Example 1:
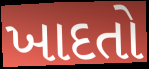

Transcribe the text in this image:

ખાદતો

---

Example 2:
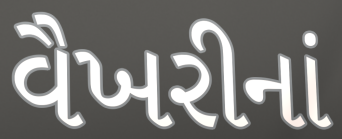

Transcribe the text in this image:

વૈખરીનાં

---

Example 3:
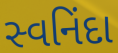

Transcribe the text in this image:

સ્વનિંદા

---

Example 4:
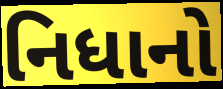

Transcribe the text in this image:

નિધાનો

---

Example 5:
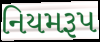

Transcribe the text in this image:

નિયમરૂપ